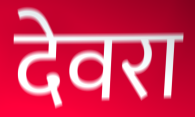
देवरा